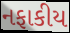
નફાકીય